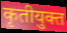
कृतीयुक्त